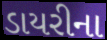
ડાયરીના